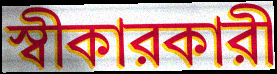
স্বীকারকারী